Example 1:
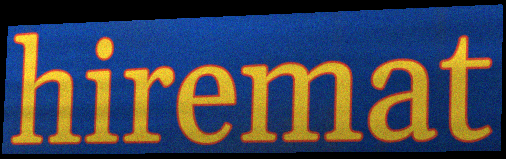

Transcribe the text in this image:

hiremat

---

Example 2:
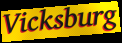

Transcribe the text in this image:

Vicksburg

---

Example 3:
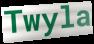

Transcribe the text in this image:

Twyla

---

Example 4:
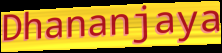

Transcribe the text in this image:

Dhananjaya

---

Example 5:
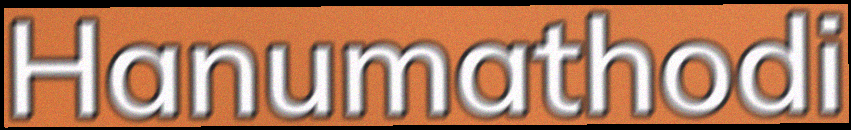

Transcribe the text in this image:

Hanumathodi